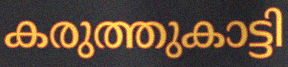
കരുത്തുകാട്ടി